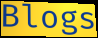
Blogs